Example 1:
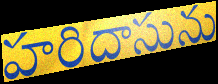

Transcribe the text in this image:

హరిదాసును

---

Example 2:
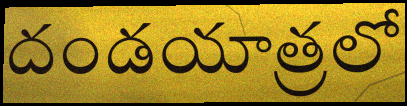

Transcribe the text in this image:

దండయాత్రలో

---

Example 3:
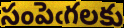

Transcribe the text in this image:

సంపెఁగలకు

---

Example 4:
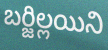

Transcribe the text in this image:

బర్జిల్లయిని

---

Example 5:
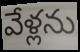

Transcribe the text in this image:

వేళ్లను